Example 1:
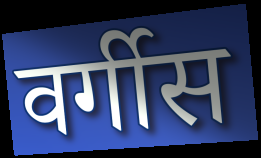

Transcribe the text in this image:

वर्गीस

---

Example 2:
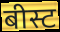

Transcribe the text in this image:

बीस्ट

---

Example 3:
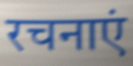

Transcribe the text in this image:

रचनाएं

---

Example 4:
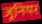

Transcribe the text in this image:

जूनियर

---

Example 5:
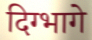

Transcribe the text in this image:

दिग्भागे